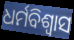
ଧର୍ମବିଶ୍ଵାସ